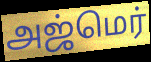
அஜ்மெர்